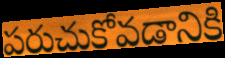
పరుచుకోవడానికి